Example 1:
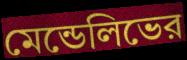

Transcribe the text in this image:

মেন্ডেলিভের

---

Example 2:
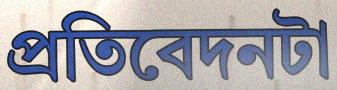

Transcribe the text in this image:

প্রতিবেদনটা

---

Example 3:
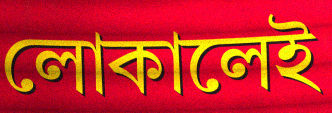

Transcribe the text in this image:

লোকালেই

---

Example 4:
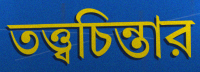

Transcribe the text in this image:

তত্ত্বচিন্তার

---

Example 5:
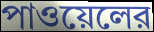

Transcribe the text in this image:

পাওয়েলের